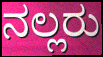
ನಲ್ಲರು